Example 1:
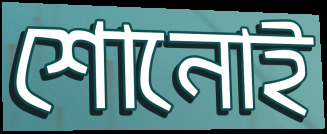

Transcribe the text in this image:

শোনোই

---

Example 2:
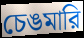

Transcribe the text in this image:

চেঙমারি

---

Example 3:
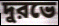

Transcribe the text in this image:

দুরভে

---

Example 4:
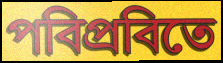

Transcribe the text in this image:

পবিপ্রবিতে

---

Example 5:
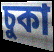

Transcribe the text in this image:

চুকা